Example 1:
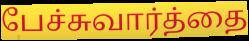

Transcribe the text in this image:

பேச்சுவார்த்தை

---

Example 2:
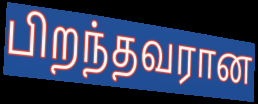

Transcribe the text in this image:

பிறந்தவரான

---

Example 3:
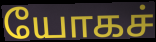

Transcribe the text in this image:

யோகச்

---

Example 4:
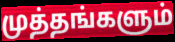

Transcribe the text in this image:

முத்தங்களும்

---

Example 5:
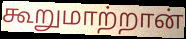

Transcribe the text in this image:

கூறுமாற்றான்